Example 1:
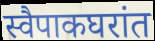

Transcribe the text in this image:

स्वैपाकघरांत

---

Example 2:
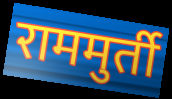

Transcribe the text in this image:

राममुर्ती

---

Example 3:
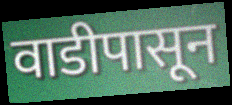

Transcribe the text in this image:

वाडीपासून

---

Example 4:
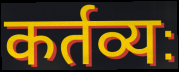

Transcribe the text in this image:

कर्तव्यः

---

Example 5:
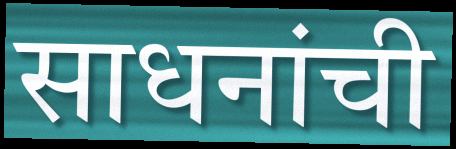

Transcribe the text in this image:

साधनांची